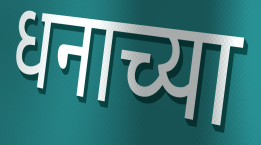
धनाच्या